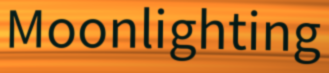
Moonlighting